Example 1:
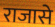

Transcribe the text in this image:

राजासे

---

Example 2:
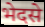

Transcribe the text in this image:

भेदसे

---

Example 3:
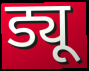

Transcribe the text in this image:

ड्यू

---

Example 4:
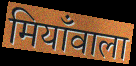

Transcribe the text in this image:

मियाँवाला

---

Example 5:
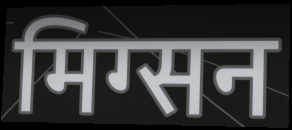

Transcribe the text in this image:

मिग्सन